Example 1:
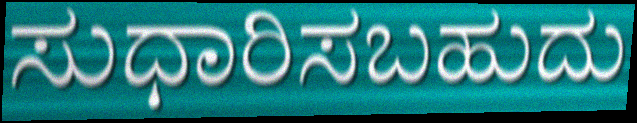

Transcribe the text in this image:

ಸುಧಾರಿಸಬಹುದು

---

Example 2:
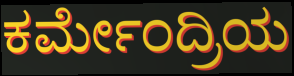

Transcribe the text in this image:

ಕರ್ಮೇಂದ್ರಿಯ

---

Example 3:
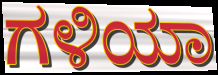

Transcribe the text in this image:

ಗಳಿಯಾ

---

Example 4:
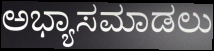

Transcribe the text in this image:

ಅಭ್ಯಾಸಮಾಡಲು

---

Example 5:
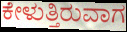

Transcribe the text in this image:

ಕೇಳುತ್ತಿರುವಾಗ